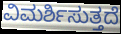
ವಿಮರ್ಶಿಸುತ್ತದೆ